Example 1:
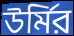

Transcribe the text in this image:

উর্মির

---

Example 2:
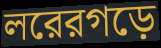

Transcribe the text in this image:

লরেরগড়ে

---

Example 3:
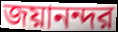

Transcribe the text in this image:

জয়ানন্দর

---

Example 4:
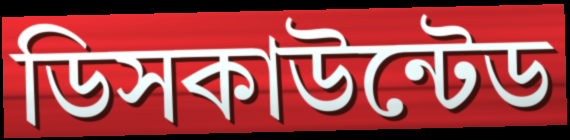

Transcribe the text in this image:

ডিসকাউন্টেড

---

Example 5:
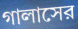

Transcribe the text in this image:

গালাসের